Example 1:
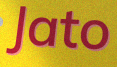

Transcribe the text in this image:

Jato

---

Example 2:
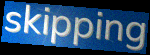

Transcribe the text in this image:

skipping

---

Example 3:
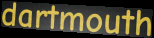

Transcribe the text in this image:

dartmouth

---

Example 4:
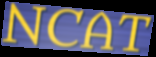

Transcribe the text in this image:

NCAT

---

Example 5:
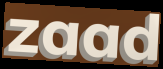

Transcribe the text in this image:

zaad